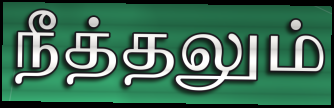
நீத்தலும்